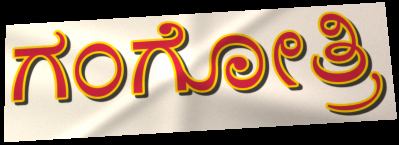
ಗಂಗೋತ್ರಿ